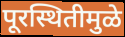
पूरस्थितीमुळे